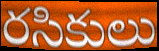
రసికులు